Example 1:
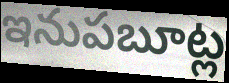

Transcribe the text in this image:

ఇనుపబూట్ల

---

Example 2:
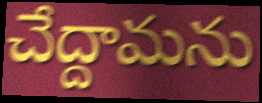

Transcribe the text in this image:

చేద్దామను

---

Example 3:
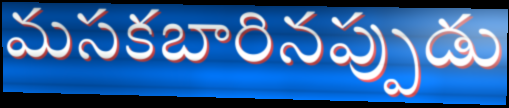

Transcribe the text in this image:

మసకబారినప్పుడు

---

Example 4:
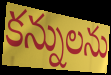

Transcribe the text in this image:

కన్నులను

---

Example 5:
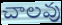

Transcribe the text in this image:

చాలవు